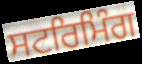
ਸਟਰਿਮਿੰਗ